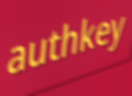
authkey